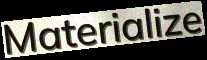
Materialize